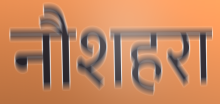
नौशहरा